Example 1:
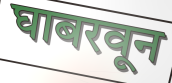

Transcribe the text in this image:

घाबरवून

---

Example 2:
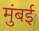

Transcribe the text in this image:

मुंबई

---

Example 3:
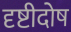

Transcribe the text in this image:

दृष्टीदोष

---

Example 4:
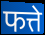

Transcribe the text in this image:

फत्ते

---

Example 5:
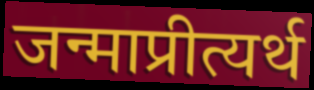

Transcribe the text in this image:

जन्माप्रीत्यर्थ